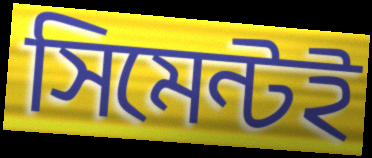
সিমেন্টই